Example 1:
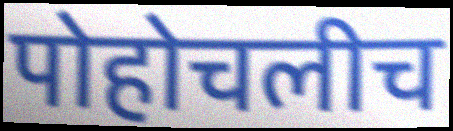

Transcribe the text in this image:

पोहोचलीच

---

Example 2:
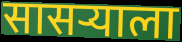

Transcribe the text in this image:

सासर्‍याला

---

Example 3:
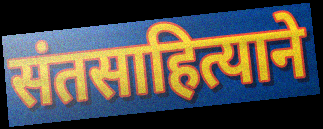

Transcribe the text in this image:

संतसाहित्याने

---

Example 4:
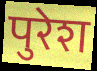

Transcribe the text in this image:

पुरेश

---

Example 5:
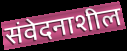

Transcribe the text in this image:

संवेदनाशील